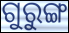
ଗୁରୁଙ୍ଗ